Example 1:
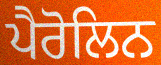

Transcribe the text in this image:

ਪੈਰੋਲਿਨ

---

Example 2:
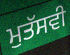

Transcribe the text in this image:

ਮੁਤੱਸਵੀ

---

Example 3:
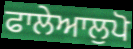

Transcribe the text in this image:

ਫਾਲੇਆਲੁਪੋ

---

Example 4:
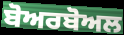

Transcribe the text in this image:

ਬੋਅਰਬੋਅਲ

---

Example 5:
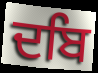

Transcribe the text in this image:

ਦਬਿ